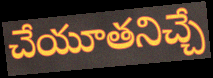
చేయూతనిచ్చే